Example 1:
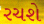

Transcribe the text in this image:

રચશે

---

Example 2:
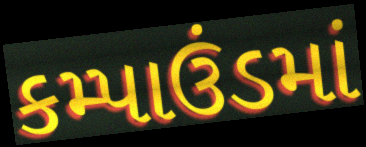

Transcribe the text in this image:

કમ્પાઉંડમાં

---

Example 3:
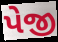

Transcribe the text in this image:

પેજી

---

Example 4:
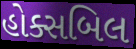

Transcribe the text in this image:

હોક્સબિલ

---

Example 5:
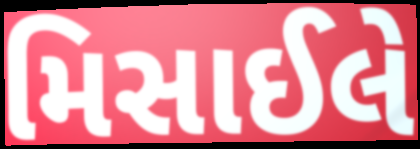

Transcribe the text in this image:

મિસાઈલે